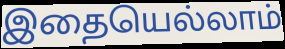
இதையெல்லாம்